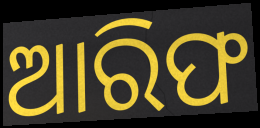
ଆରିଫ